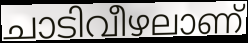
ചാടിവീഴലാണ്